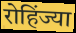
रोहिंज्या